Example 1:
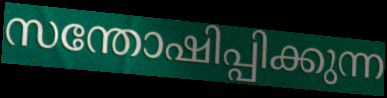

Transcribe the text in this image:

സന്തോഷിപ്പിക്കുന്ന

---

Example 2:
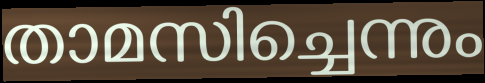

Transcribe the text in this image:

താമസിച്ചെന്നും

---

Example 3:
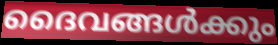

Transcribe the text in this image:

ദൈവങ്ങൾക്കും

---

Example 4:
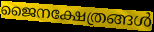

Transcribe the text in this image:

ജൈനക്ഷേത്രങ്ങൾ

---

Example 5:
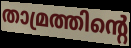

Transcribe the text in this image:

താമ്രത്തിന്റെ